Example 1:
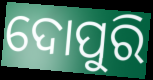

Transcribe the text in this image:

ଦୋପୁରି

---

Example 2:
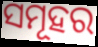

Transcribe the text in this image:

ସମୂହର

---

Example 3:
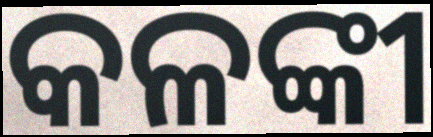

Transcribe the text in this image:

କଳଙ୍କୀ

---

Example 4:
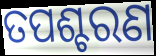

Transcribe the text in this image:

ତପଶ୍ଚରଣ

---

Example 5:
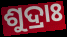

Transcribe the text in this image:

ଶୁଦ୍ରାଃ